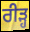
ਰੀੜ੍ਹ